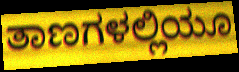
ತಾಣಗಳಲ್ಲಿಯೂ